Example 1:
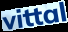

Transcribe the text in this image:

vittal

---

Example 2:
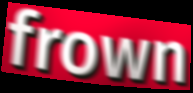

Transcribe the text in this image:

frown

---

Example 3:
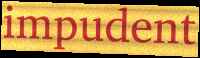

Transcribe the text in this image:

impudent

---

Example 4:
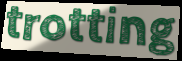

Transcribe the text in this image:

trotting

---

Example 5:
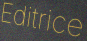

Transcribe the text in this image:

Editrice